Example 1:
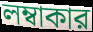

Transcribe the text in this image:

লম্বাকার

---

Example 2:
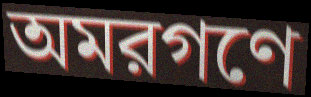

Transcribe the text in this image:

অমরগণে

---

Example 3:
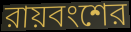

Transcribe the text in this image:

রায়বংশের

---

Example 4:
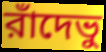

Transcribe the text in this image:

রাঁদেভু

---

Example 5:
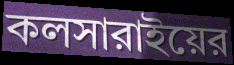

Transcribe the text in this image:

কলসারাইয়ের